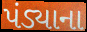
પંડ્યાના